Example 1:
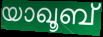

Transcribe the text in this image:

യാഖൂബ്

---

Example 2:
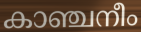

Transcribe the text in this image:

കാഞ്ചനീം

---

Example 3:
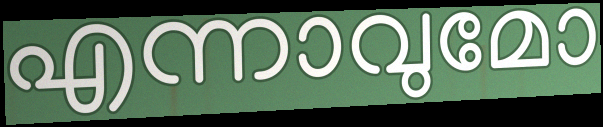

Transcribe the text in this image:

എന്നാവുമോ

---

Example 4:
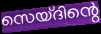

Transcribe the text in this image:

സെയ്ദിന്റെ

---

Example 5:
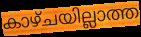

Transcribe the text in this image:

കാഴ്ചയില്ലാത്ത